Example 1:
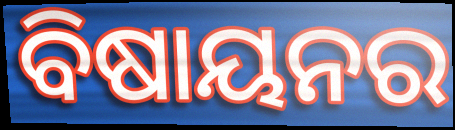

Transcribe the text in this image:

ବିଷାୟନର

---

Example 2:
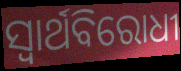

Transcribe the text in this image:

ସ୍ବାର୍ଥବିରୋଧୀ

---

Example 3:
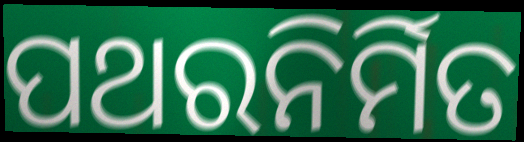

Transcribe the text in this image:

ପଥରନିର୍ମିତ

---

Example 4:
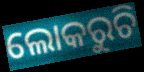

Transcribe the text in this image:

ଲୋକରୁଚି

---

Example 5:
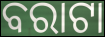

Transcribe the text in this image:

ବରାଟା